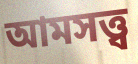
আমসত্ত্ব